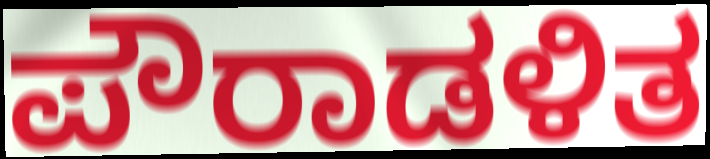
ಪೌರಾಡಳಿತ